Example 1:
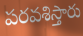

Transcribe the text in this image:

పరవశిస్తారు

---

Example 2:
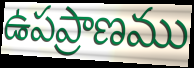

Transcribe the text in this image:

ఉపప్రాణము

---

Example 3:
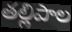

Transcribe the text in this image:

తల్లిపాల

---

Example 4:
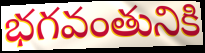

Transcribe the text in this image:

భగవంతునికి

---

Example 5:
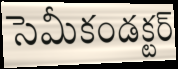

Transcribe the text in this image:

సెమీకండక్టర్